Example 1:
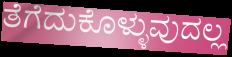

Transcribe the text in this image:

ತೆಗೆದುಕೊಳ್ಳುವುದಲ್ಲ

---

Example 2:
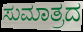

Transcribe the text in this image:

ಸುಮಾತ್ರದ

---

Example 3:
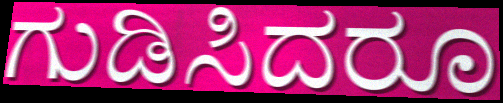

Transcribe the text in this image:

ಗುಡಿಸಿದರೂ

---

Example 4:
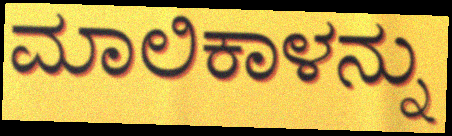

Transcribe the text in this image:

ಮಾಲಿಕಾಳನ್ನು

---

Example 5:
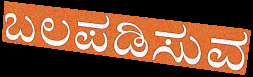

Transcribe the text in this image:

ಬಲಪಡಿಸುವ